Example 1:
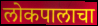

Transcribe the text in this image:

लोकपालाचा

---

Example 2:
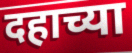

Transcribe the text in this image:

दहाच्या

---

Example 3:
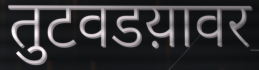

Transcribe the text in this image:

तुटवडय़ावर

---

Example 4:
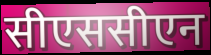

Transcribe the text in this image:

सीएससीएन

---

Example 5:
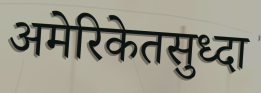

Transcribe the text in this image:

अमेरिकेतसुध्दा